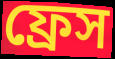
ফ্রেস